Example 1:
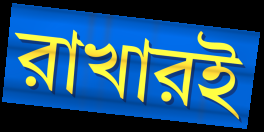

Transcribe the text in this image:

রাখারই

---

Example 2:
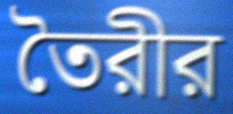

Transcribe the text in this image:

তৈরীর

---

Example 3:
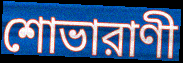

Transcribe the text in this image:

শোভারাণী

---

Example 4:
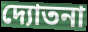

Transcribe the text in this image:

দ্যোতনা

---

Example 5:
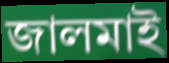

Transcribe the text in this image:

জালমাই